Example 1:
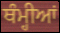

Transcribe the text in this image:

ਥੰਮ੍ਹੀਆਂ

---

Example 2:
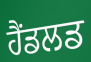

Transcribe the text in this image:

ਹੈਂਡਲਡ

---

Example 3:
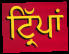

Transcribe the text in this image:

ਟ੍ਰਿੱਪਾਂ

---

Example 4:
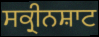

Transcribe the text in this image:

ਸਕ੍ਰੀਨਸ਼ਾਟ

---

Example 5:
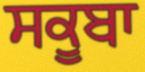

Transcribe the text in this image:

ਸਕੂਬਾ